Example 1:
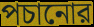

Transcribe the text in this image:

পচানোর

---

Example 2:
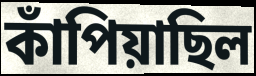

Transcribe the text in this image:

কাঁপিয়াছিল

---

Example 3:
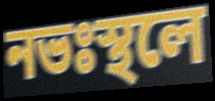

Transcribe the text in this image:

নভঃস্থলে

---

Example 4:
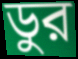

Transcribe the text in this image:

ডুর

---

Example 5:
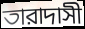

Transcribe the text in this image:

তারাদাসী